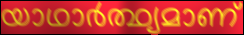
യാഥാർത്ഥ്യമാണ്